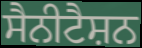
ਸੈਨੀਟੈਸ਼ਨ